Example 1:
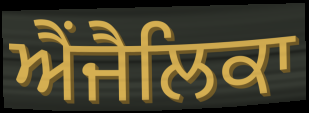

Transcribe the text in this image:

ਐਂਜੈਲਿਕਾ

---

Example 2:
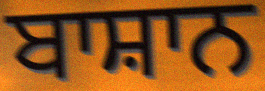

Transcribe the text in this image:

ਬਾਸ਼ਾਨ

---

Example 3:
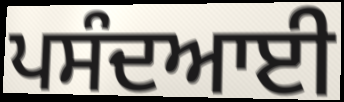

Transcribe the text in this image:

ਪਸੰਦਆਈ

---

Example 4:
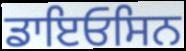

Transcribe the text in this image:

ਡਾਇਓਸਿਨ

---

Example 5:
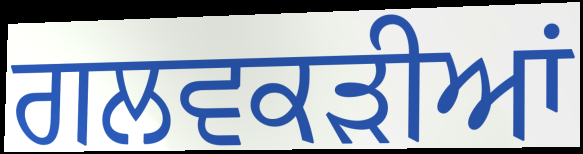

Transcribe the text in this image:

ਗਲਵਕੜੀਆਂ